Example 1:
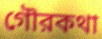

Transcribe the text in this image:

গৌরকথা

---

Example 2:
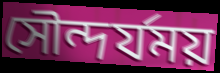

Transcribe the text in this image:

সৌন্দর্যময়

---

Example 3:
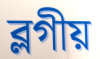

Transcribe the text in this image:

ব্লগীয়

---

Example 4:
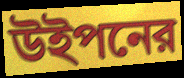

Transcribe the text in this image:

উইপনের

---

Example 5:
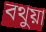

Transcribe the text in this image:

বথুয়া